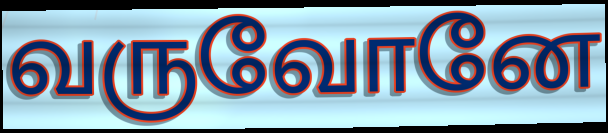
வருவோனே